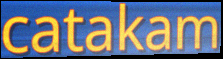
catakam